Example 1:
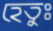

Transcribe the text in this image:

হেতুঃ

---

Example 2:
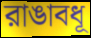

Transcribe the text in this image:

রাঙাবধূ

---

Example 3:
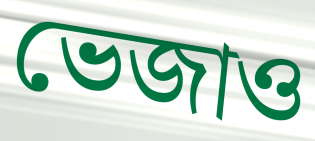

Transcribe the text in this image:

ভেজাও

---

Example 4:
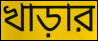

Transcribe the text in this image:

খাড়ার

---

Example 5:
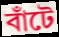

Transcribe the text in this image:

বাঁটে